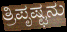
ತ್ರಿಪೃಷ್ಟನು